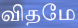
விதமே